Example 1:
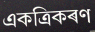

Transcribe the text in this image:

একত্ৰিকৰণ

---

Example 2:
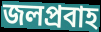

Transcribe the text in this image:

জলপ্ৰবাহ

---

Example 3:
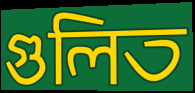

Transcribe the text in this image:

গুলিত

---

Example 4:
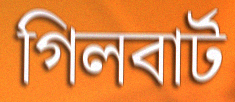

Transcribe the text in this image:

গিলবাৰ্ট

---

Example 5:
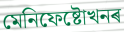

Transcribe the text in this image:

মেনিফেষ্টোখনৰ